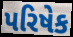
પરિષેક